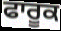
ਫਾਰੂਕ